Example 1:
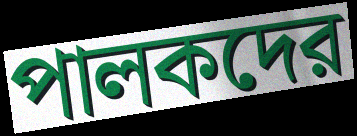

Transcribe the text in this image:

পালকদের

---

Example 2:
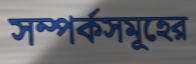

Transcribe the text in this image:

সম্পর্কসমূহের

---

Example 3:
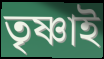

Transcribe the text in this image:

তৃষ্ণাই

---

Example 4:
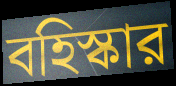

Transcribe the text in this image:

বহিস্কার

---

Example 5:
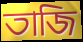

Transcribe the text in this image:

তাজি